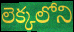
లెక్కలోని